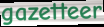
gazetteer